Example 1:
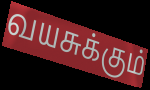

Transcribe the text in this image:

வயசுக்கும்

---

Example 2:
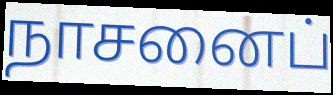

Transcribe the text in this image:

நாசனைப்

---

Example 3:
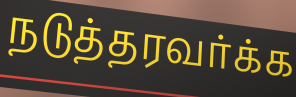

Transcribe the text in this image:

நடுத்தரவர்க்க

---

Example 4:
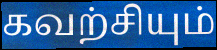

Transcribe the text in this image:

கவற்சியும்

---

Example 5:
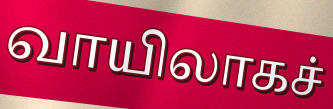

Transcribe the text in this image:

வாயிலாகச்